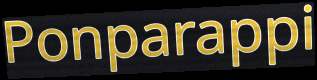
Ponparappi